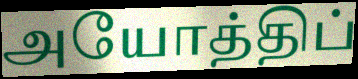
அயோத்திப்